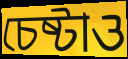
চেষ্টাও